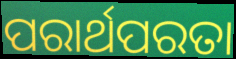
ପରାର୍ଥପରତା